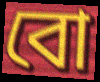
বো